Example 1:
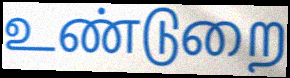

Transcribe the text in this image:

உண்டுறை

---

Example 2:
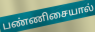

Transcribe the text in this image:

பண்ணிசையால்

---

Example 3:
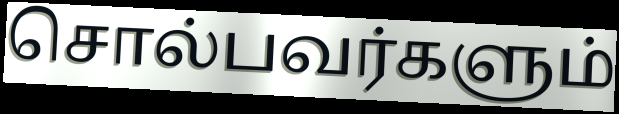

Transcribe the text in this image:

சொல்பவர்களும்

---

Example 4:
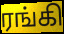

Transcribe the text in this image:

ரங்கி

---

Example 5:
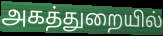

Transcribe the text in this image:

அகத்துறையில்